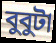
বুবুটা